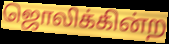
ஜொலிக்கின்ற